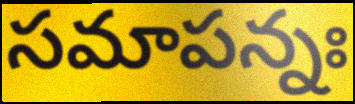
సమాపన్నః